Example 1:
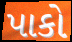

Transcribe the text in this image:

પાકો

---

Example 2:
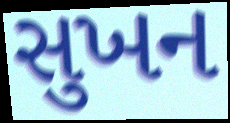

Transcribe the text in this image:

સુખન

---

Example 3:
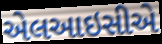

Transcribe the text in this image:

એલઆઇસીએ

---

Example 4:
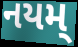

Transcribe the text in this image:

નયમ્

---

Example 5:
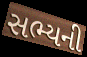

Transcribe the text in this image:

સભ્યની